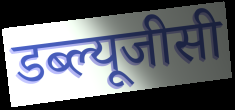
डब्ल्यूजीसी